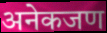
अनेकजण